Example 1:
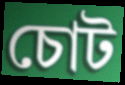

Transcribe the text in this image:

চোট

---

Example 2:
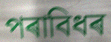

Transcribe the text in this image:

পৰাবিধৰ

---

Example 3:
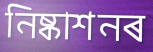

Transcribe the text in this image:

নিষ্কাশনৰ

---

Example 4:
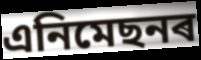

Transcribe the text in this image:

এনিমেছনৰ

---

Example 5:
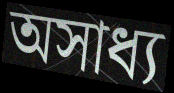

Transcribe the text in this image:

অসাধ্য